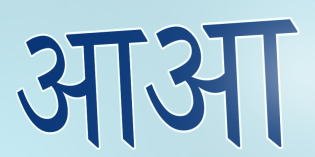
आआ